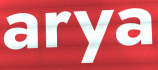
arya